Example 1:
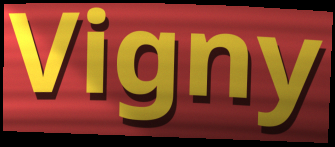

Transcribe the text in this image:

Vigny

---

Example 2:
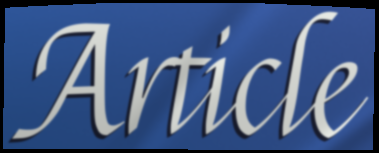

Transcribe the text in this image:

Article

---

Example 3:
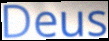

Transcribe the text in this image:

Deus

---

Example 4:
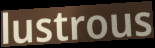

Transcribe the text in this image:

lustrous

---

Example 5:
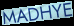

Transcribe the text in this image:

MADHYE